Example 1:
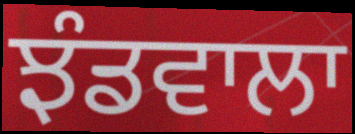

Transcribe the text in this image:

ਝੰਡਵਾਲਾ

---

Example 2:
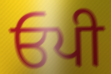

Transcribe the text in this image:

ਓਪੀ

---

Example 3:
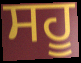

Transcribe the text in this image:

ਸਹੂ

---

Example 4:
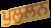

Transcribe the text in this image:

ਪੁਲੁਲਨ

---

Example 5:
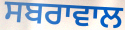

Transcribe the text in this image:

ਸਬਰਾਵਾਲ